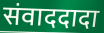
संवाददादा